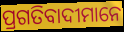
ପ୍ରଗତିବାଦୀମାନେ